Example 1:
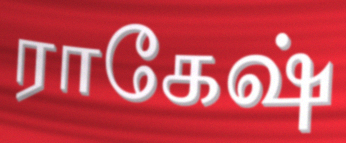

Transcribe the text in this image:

ராகேஷ்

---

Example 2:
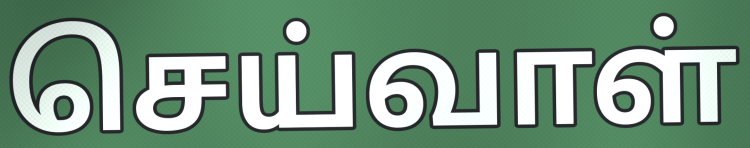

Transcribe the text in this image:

செய்வாள்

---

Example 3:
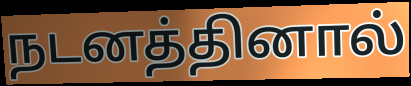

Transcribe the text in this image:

நடனத்தினால்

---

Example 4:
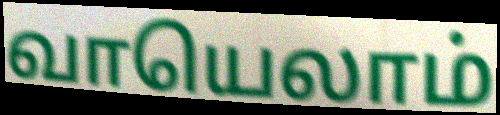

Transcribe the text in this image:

வாயெலாம்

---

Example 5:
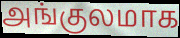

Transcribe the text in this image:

அங்குலமாக